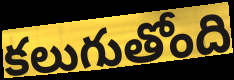
కలుగుతోంది